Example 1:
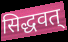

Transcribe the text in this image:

सिद्धवत्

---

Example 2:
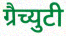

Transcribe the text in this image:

ग्रैच्युटी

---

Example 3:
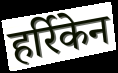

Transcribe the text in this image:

हर्रिकेन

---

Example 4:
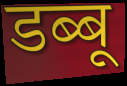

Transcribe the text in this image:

डब्बू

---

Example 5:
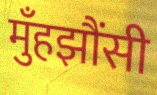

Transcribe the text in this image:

मुँहझौंसी